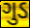
ગુડ